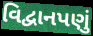
વિદ્વાનપણું